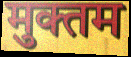
मुक्तम